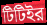
টিটিইর